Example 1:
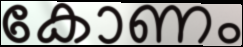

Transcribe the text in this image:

കോണം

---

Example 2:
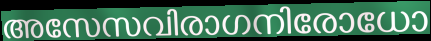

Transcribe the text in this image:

അസേസവിരാഗനിരോധോ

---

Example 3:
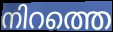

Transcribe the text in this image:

നിറത്തെ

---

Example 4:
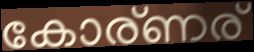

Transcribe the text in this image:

കോര്ണര്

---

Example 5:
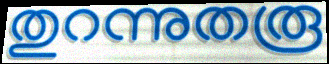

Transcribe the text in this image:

തുറന്നുതരൂ